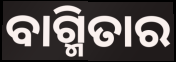
ବାଗ୍ମିତାର